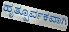
ಹೃತ್ಪೂರ್ವಕವಾಗಿ